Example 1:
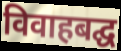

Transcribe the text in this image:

विवाहबद्घ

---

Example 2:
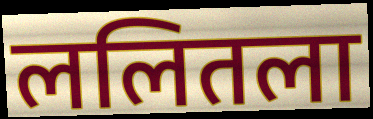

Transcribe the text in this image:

ललितला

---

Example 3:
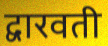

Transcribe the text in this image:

द्वारवती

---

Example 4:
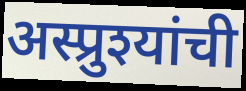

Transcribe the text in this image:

अस्प्रुश्यांची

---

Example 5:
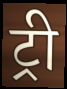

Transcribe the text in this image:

ट्री